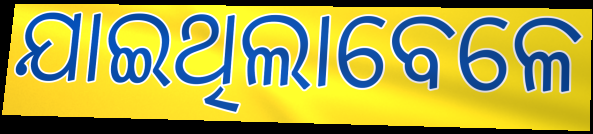
ଯାଇଥିଲାବେଳେ